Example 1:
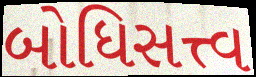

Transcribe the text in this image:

બોધિસત્ત્વ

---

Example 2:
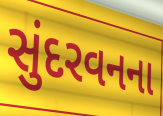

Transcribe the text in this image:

સુંદરવનના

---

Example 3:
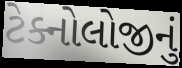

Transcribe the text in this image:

ટેક્નોલોજીનું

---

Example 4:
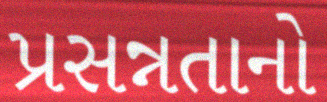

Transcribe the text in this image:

પ્રસન્નતાનો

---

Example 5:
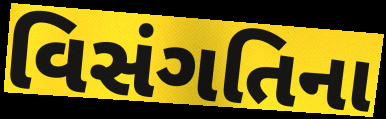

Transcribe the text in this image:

વિસંગતિના